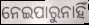
ନେଇପାରୁନାହିଁ